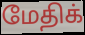
மேதிக்